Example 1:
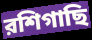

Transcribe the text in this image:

রশিগাছি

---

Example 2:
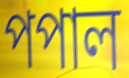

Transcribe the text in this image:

পপাল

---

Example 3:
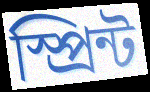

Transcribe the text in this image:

স্প্রিন্ট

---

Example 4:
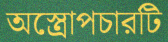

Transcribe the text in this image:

অস্ত্রোপচারটি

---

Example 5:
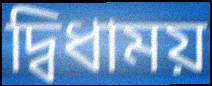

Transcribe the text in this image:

দ্বিধাময়